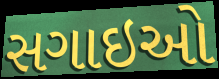
સગાઇઓ